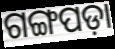
ଗଙ୍ଗପଡ଼ା